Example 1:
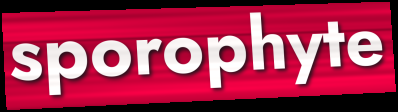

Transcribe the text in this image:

sporophyte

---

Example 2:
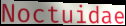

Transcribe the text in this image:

Noctuidae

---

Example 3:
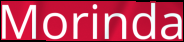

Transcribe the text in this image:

Morinda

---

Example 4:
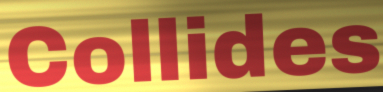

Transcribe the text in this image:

Collides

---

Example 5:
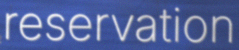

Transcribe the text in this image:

reservation